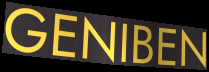
GENIBEN